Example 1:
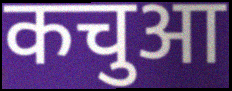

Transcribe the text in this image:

कचुआ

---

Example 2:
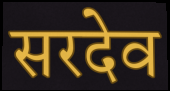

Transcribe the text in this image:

सरदेव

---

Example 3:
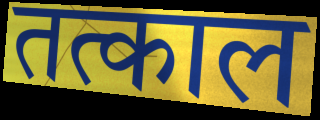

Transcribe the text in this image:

तत्‍काल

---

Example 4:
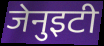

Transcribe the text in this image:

जेनुइटी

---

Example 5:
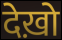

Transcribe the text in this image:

देख़ो